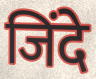
जिंदे